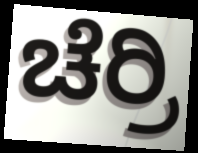
ಚೆರ್ರಿ